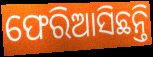
ଫେରିଆସିଛନ୍ତି